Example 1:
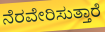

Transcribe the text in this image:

ನೆರವೇರಿಸುತ್ತಾರೆ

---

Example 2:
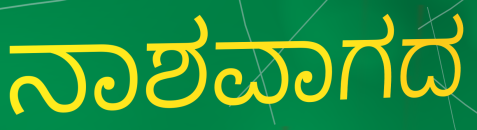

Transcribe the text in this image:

ನಾಶವಾಗದ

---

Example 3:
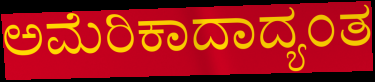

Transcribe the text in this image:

ಅಮೆರಿಕಾದಾದ್ಯಂತ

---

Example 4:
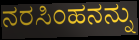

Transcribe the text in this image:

ನರಸಿಂಹನನ್ನು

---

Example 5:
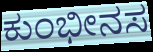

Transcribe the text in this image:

ಕುಂಭೀನಸ